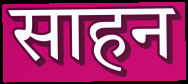
साहन